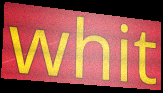
whit